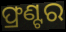
ଫ୍ରଣ୍ଟର